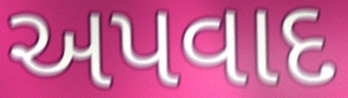
અપવાદ